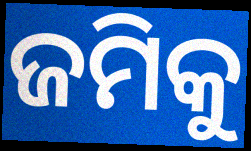
ଜମିକୁ